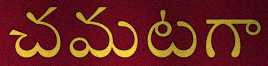
చమటగా